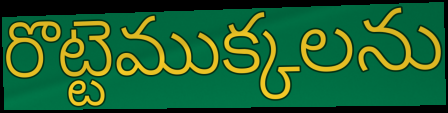
రొట్టెముక్కలను